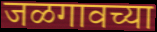
जळगावच्या